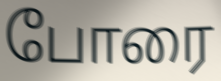
போரை